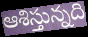
ఆశిస్తున్నది